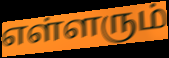
எள்ளரும்